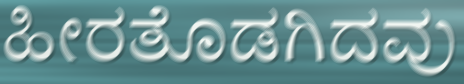
ಹೀರತೊಡಗಿದವು